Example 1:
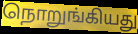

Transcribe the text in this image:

நொறுங்கியது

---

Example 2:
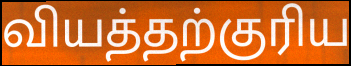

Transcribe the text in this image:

வியத்தற்குரிய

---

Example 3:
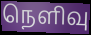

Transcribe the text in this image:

நெளிவு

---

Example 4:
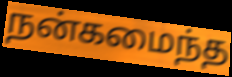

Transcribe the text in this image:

நன்கமைந்த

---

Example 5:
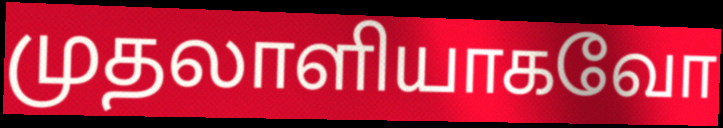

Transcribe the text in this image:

முதலாளியாகவோ